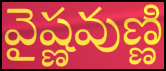
వైష్ణవుణ్ణి